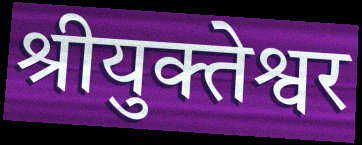
श्रीयुक्तेश्वर